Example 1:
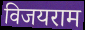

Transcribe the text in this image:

विजयराम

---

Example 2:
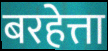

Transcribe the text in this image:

बरहेत्ता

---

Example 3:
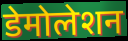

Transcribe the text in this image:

डेमोलेशन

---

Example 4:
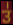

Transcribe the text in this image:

उ॑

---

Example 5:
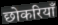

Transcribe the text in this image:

छोकरियाँ